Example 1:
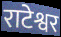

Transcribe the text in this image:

राटेश्वर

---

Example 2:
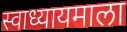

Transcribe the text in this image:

स्वाध्यायमाला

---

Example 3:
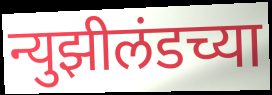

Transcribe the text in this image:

न्युझीलंडच्या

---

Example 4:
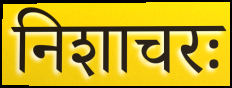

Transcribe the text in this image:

निशाचरः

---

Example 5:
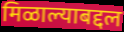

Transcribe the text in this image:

मिळाल्याबद्दल